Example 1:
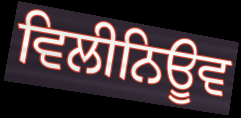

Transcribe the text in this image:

ਵਿਲੀਨਿਊਵ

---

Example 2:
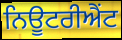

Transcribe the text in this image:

ਨਿਊਟਰੀਐਂਟ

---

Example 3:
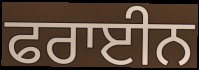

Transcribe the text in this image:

ਫਰਾਈਨ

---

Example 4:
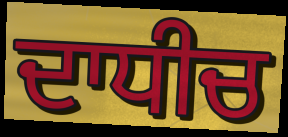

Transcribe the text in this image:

ਦਾਧੀਚ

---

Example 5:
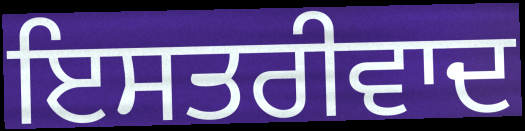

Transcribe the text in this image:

ਇਸਤਰੀਵਾਦ